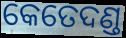
କେତେଦଣ୍ଡ